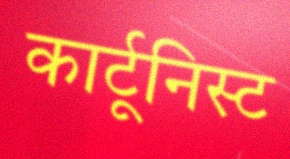
कार्टूनिस्ट